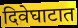
दिवेघाटात